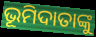
ଭୂମିଦାତାଙ୍କୁ